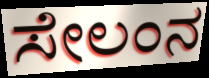
ಸೇಲಂನ